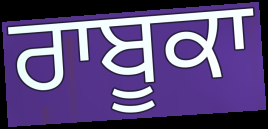
ਰਾਬੂਕਾ